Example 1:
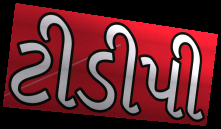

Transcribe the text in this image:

ટીડીપી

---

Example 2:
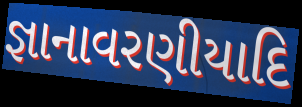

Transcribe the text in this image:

જ્ઞાનાવરણીયાદિ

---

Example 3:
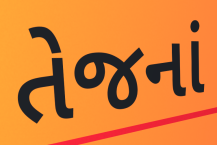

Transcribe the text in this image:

તેજનાં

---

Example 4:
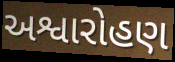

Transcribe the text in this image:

અશ્વારોહણ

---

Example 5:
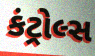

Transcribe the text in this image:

કંટ્રોલ્સ